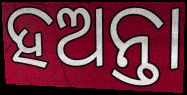
ହଅନ୍ତା